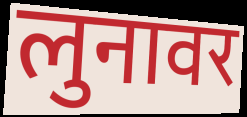
लुनावर